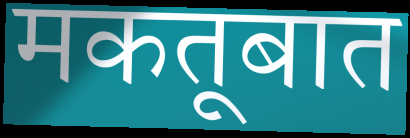
मकतूबात